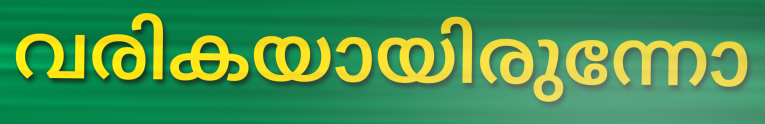
വരികയായിരുന്നോ